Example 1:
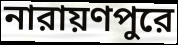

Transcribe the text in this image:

নারায়ণপুরে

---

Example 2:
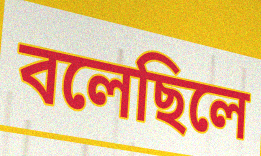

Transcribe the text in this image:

বলেছিলে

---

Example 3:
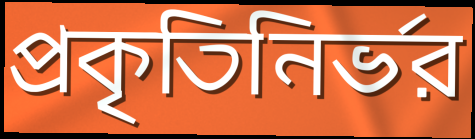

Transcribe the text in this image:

প্রকৃতিনির্ভর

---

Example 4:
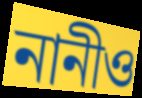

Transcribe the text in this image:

নানীও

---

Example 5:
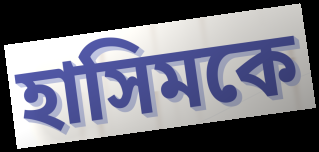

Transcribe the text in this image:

হাসিমকে